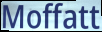
Moffatt